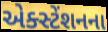
એક્સ્ટેંશનના